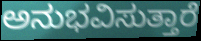
ಅನುಭವಿಸುತ್ತಾರೆ